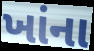
ખાંના